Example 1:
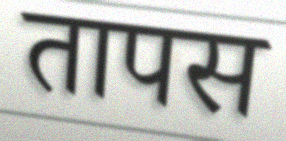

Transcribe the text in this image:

तापस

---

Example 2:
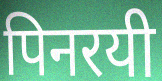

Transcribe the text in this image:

पिनरयी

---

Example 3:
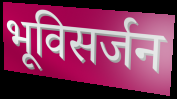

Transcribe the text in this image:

भूविसर्जन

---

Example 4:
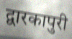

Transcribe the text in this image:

द्वारकापुरी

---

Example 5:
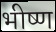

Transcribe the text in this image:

भीष्ण